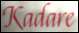
Kadare